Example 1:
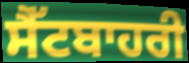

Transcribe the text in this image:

ਸੈੱਟਬਾਹਰੀ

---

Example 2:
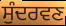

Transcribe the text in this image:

ਸੁੰਦਰਵਣ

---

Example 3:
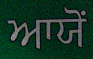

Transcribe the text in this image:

ਆਯੋਂ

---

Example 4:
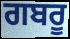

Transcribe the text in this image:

ਗਬਰੂ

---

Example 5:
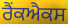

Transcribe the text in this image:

ਰੈਂਕਐਕਸ